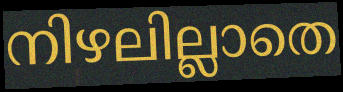
നിഴലില്ലാതെ